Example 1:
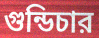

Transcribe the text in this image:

গুন্ডিচার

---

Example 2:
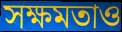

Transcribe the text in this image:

সক্ষমতাও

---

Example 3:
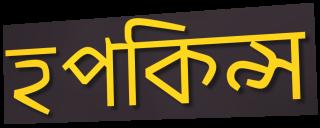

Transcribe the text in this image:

হপকিন্স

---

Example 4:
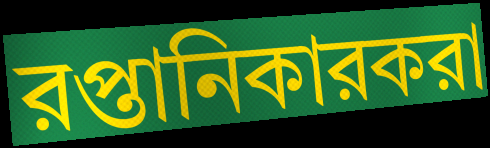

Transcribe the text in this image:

রপ্তানিকারকরা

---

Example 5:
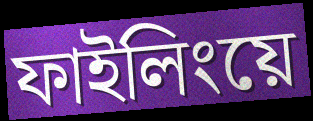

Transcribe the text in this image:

ফাইলিংয়ে